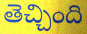
తెచ్చింది